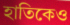
হাতিকেও